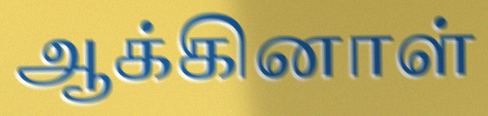
ஆக்கினாள்